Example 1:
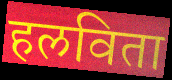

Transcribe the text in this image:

हलविता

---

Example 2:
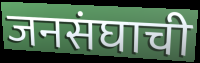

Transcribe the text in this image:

जनसंघाची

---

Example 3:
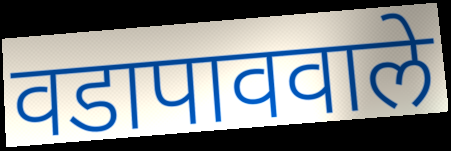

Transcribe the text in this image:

वडापाववाले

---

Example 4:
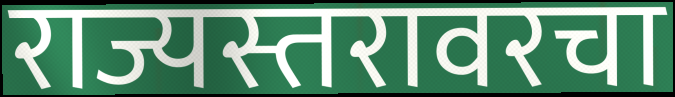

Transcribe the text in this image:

राज्यस्तरावरचा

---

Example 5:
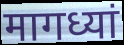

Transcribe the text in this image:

मागध्यां